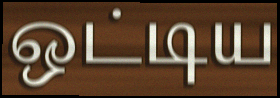
ஒட்டிய